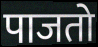
पाजतो